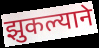
झुकल्याने